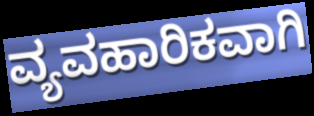
ವ್ಯವಹಾರಿಕವಾಗಿ